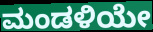
ಮಂಡಳಿಯೇ